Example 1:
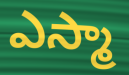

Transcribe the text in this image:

ఎస్మా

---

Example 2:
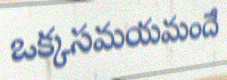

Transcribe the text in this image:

ఒక్కసమయమందే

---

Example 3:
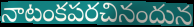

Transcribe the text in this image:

నాటంకపరచినందున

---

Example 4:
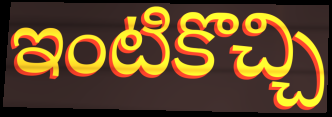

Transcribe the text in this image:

ఇంటికొచ్చి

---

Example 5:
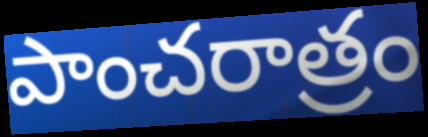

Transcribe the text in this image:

పాంచరాత్రం